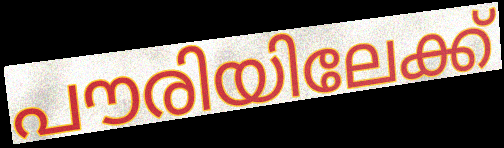
പൗരിയിലേക്ക്